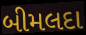
બીમલદા